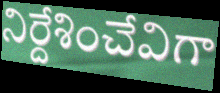
నిర్దేశించేవిగా